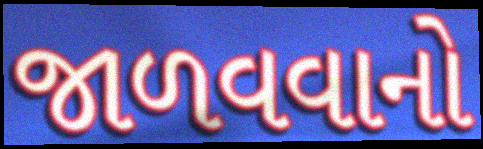
જાળવવાનો